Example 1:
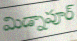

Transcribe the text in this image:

మిడ్నాపూర్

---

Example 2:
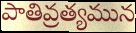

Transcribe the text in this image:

పాతివ్రత్యమున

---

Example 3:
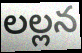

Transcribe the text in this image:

లల్లన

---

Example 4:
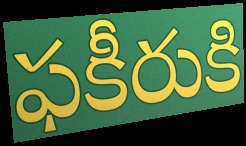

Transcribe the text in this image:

ఫకీరుకి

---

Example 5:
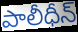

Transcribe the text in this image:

పాలీధీన్